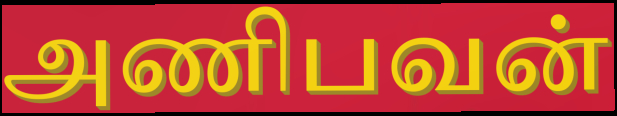
அணிபவன்